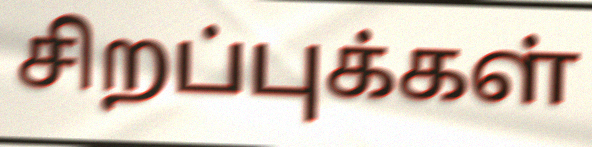
சிறப்புக்கள்